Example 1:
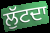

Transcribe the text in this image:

ਲੁੱਟਦਾ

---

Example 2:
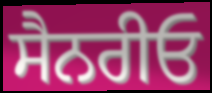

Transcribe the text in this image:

ਸੈਨਰੀਓ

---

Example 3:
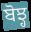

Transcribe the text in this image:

ਬੋਝ੍ਹ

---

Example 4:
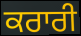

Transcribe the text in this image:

ਕਰਾਰੀ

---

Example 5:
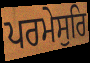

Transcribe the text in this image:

ਪਰਮੇਸੁਰਿ